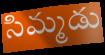
సిమ్మడు